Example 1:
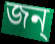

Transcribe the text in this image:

জন্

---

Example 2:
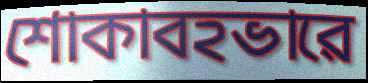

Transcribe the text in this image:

শোকাবহভাৱে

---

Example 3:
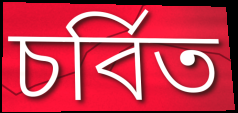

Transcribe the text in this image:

চৰ্বিত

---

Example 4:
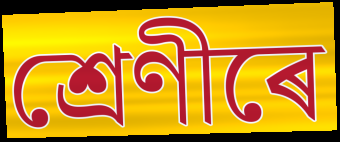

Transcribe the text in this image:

শ্ৰেণীৰে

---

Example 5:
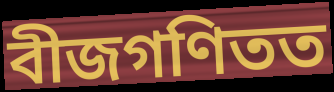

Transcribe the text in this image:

বীজগণিতত